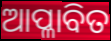
ଆପ୍ଳାବିତ